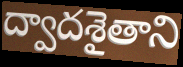
ద్వాదశైతాని